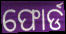
ଫୋର୍ଡ